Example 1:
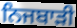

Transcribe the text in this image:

ਨਿਜਬਾੜੀ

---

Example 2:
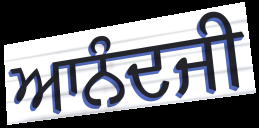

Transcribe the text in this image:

ਆਨੰਦਜੀ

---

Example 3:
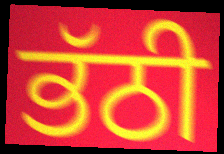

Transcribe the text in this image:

ਭੱਠੀ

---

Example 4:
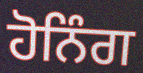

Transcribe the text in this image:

ਹੋਨਿੰਗ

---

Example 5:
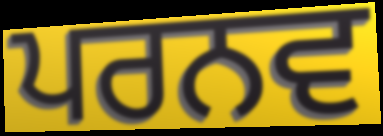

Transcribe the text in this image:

ਪਰਨਵ